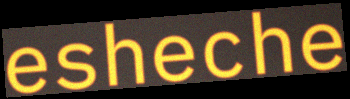
esheche